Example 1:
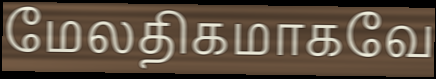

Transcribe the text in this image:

மேலதிகமாகவே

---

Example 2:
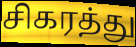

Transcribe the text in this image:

சிகரத்து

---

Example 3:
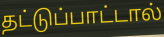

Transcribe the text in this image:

தட்டுப்பாட்டால்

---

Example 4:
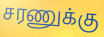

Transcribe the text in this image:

சரணுக்கு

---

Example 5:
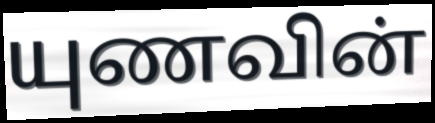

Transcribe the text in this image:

யுணவின்